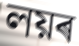
লয়ৰ